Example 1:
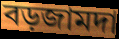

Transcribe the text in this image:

বড়জামদা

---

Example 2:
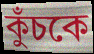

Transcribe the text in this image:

কুঁচকে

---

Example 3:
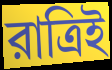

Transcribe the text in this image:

রাত্রিই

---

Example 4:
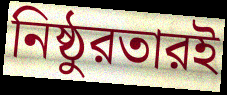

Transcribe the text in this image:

নিষ্ঠুরতারই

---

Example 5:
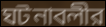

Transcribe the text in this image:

ঘটনাবলীর